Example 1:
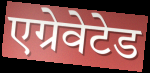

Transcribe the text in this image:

एग्रेवेटेड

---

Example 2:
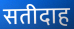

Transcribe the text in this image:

सतीदाह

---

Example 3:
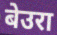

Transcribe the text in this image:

बेउरा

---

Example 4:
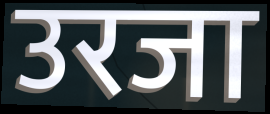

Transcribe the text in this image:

उरजा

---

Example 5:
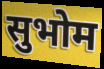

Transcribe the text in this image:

सुभोम